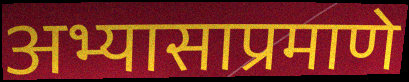
अभ्यासाप्रमाणे